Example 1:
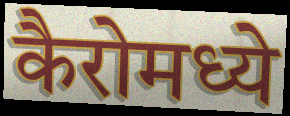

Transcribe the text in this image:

कैरोमध्ये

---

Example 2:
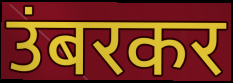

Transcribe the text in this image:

उंबरकर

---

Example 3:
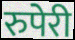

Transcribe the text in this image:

रुपेरी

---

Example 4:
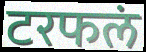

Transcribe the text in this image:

टरफलं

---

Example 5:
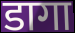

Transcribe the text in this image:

डागा